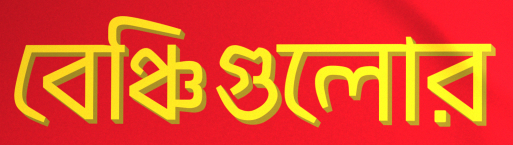
বেঞ্চিগুলোর